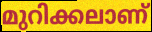
മുറിക്കലാണ്